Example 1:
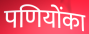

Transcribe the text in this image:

पणियोंका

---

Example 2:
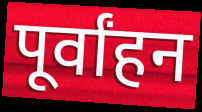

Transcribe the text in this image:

पूर्वांहन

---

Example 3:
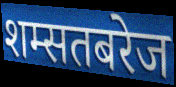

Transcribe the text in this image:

शम्सतबरेज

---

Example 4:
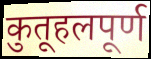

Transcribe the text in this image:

कुतूहलपूर्ण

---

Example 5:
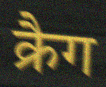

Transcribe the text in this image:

क्रैग